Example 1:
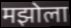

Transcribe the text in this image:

मझोला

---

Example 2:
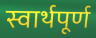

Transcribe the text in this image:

स्वार्थपूर्ण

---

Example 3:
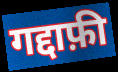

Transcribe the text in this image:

गद्दाफ़ी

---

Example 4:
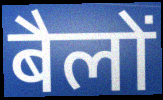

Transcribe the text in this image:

बैलों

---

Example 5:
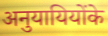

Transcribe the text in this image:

अनुयायियोंके